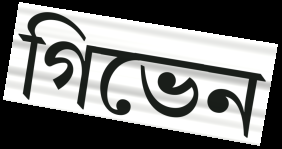
গিভেন